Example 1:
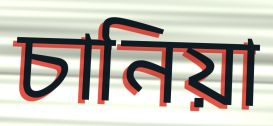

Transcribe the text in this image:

চানিয়া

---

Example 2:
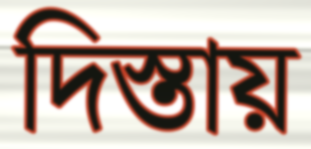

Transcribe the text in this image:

দিস্তায়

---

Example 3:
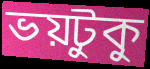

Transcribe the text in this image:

ভয়টুকু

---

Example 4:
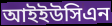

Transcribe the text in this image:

আইইউসিএন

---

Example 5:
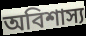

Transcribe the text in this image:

অবিশাস্য